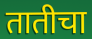
तातीचा